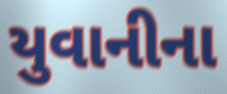
યુવાનીના